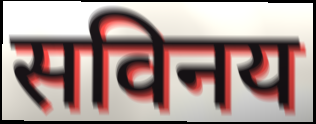
सविनय